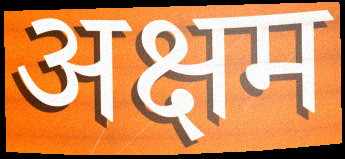
अक्षम